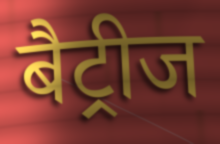
बैट्रीज